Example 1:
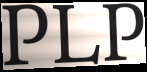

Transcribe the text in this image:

PLP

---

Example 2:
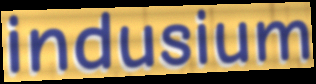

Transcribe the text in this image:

indusium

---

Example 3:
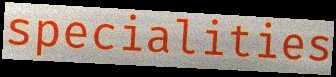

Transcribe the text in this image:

specialities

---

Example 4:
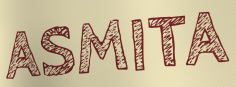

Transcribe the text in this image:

ASMITA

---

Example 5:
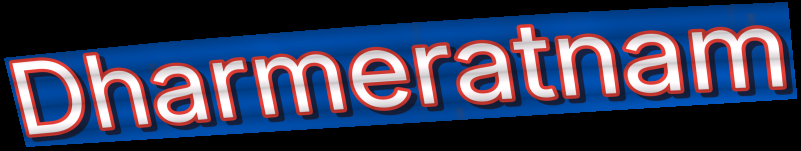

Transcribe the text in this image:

Dharmeratnam